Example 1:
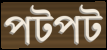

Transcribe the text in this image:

পটপট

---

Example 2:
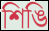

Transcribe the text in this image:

শিঙি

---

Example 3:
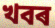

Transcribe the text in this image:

খবৰ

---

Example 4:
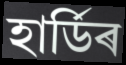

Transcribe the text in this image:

হাৰ্ডিৰ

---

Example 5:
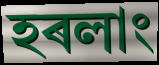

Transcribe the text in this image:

হৰলাং